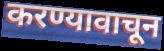
करण्यावाचून